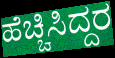
ಹೆಚ್ಚಿಸಿದ್ದರ